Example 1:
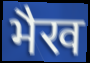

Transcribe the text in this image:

भैख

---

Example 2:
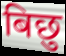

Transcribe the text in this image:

बिछु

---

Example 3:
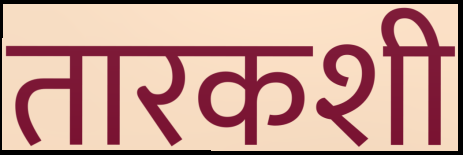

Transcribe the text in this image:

तारकशी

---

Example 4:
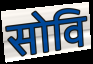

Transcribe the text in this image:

सोवि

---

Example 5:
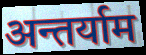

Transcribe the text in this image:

अन्तर्याम